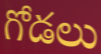
గోడలు